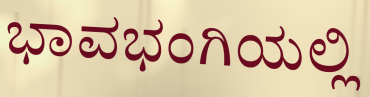
ಭಾವಭಂಗಿಯಲ್ಲಿ